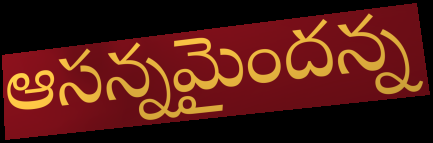
ఆసన్నమైందన్న